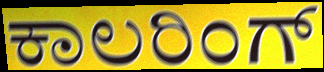
ಕಾಲರಿಂಗ್